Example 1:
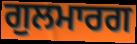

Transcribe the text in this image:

ਗੁਲਮਾਰਗ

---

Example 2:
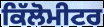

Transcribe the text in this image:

ਕਿੱਲੋਮੀਟਰ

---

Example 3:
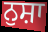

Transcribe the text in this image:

ਨੁਸ਼ਾ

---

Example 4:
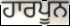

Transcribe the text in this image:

ਹਾਰਪੂਨ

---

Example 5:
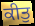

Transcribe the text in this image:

ਕੀਤੁ